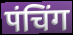
पंचिंग